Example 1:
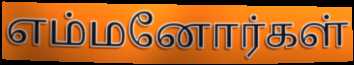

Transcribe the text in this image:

எம்மனோர்கள்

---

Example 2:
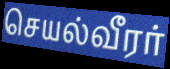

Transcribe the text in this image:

செயல்வீரர்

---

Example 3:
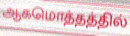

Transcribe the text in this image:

ஆகமொத்தத்தில்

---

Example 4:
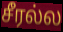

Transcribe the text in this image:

சீரல்ல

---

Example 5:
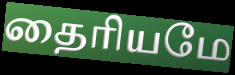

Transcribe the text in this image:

தைரியமே